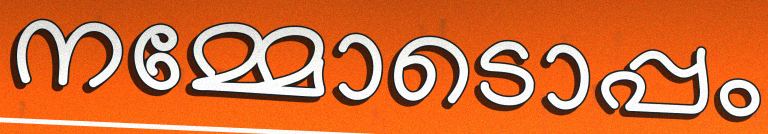
നമ്മോടൊപ്പം